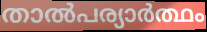
താൽപര്യാർത്ഥം